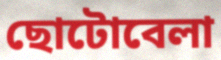
ছোটোবেলা